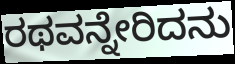
ರಥವನ್ನೇರಿದನು